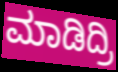
ಮಾಡಿದ್ರಿ